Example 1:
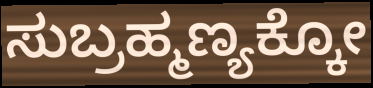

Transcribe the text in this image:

ಸುಬ್ರಹ್ಮಣ್ಯಕ್ಕೋ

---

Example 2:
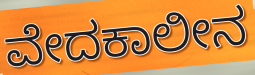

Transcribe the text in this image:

ವೇದಕಾಲೀನ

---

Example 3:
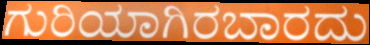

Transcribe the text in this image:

ಗುರಿಯಾಗಿರಬಾರದು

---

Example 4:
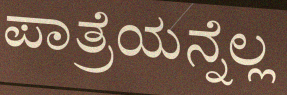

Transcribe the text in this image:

ಪಾತ್ರೆಯನ್ನೆಲ್ಲ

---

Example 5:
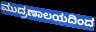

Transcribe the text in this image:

ಮುದ್ರಣಾಲಯದಿಂದ